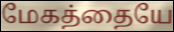
மேகத்தையே